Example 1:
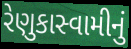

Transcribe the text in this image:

રેણુકાસ્વામીનું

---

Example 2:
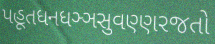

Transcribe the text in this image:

પહૂતધનધઞ્ઞસુવણ્ણરજતો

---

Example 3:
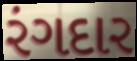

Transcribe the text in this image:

રંગદાર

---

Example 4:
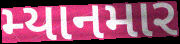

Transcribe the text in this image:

મ્યાનમાર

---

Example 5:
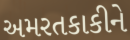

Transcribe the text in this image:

અમરતકાકીને